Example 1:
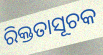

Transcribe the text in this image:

ରିକ୍ତତାସୂଚକ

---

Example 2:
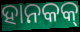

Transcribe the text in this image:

ହାନକକ୍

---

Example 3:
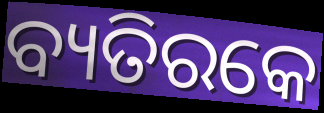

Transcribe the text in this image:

ବ୍ୟତିରକେ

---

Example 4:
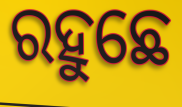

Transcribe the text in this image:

ରହୁଛେ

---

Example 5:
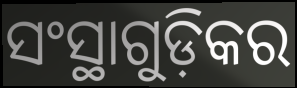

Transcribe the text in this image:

ସଂସ୍ଥାଗୁଡ଼ିକର